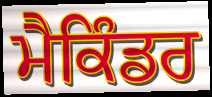
ਮੈਕਿੰਡਰ